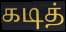
கடித்